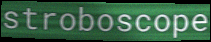
stroboscope